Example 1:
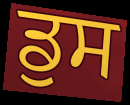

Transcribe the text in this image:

ਡੁਸ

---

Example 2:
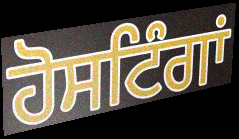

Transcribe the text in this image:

ਹੋਸਟਿੰਗਾਂ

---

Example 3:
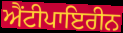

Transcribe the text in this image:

ਐਂਟੀਪਾਇਰੀਨ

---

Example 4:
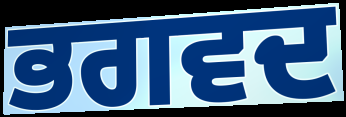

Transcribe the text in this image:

ਭਗਵਦ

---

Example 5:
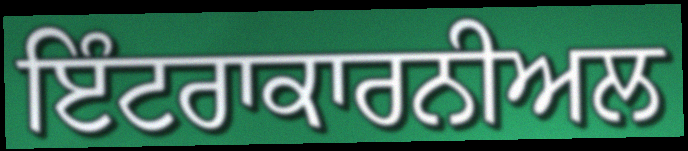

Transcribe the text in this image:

ਇੰਟਰਾਕਾਰਨੀਅਲ